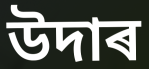
উদাৰ